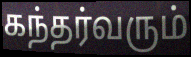
கந்தர்வரும்